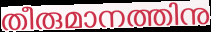
തീരുമാനത്തിനു